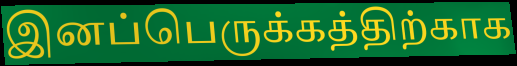
இனப்பெருக்கத்திற்காக